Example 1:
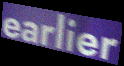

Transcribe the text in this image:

earlier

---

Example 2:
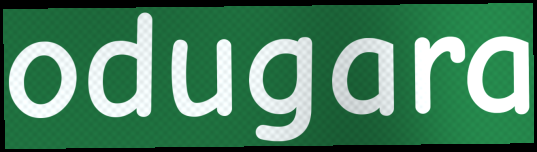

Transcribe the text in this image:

odugara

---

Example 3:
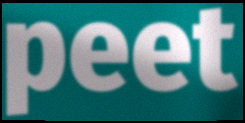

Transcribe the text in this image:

peet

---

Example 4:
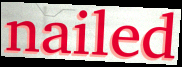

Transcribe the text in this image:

nailed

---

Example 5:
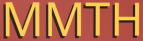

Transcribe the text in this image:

MMTH